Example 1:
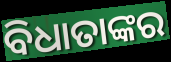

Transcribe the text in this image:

ବିଧାତାଙ୍କର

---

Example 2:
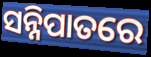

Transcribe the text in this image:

ସନ୍ନିପାତରେ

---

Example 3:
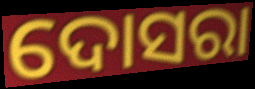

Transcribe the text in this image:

ଦୋସରା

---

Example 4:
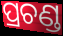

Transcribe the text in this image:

ପ୍ରଚଣ୍ଡ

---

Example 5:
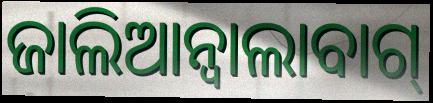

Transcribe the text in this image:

ଜାଲିଆନ୍ଵାଲାବାଗ୍